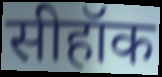
सीहॉक